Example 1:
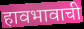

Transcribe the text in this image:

हावभावाची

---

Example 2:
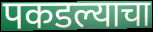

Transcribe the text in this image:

पकडल्याचा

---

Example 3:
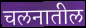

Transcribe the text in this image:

चलनातील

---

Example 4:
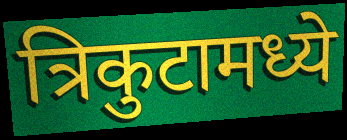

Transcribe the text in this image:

त्रिकुटामध्ये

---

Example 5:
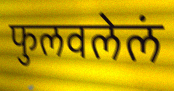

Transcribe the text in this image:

फुलवलेलं